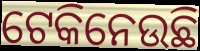
ଟେକିନେଉଛି